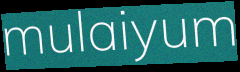
mulaiyum